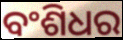
ବଂଶିଧର